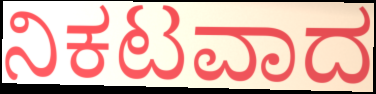
ನಿಕಟವಾದ